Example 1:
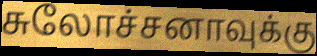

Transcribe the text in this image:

சுலோச்சனாவுக்கு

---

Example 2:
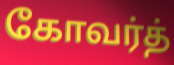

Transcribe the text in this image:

கோவர்த்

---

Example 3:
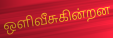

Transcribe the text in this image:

ஒளிவீசுகின்றன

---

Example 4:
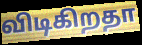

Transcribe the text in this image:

விடிகிறதா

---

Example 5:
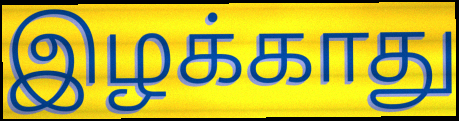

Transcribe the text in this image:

இழக்காது